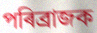
পৰিব্ৰাজক